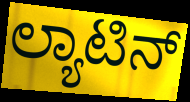
ಲ್ಯಾಟಿನ್